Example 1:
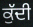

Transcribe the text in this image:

ਕੁੱਦੀ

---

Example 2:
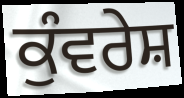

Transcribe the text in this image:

ਕੁੰਵਰੇਸ਼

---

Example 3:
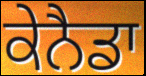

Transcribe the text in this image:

ਕੇਨੈਡਾ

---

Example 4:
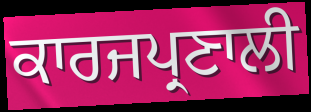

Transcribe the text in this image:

ਕਾਰਜਪ੍ਰਣਾਲੀ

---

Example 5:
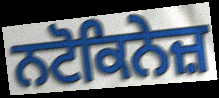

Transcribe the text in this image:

ਨਟੋਕਿਨੇਜ਼